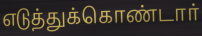
எடுத்துக்கொண்டார்